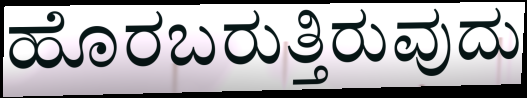
ಹೊರಬರುತ್ತಿರುವುದು